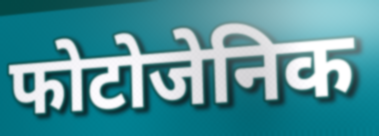
फोटोजेनिक